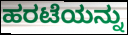
ಹರಟೆಯನ್ನು